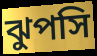
ঝুপসি